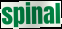
spinal